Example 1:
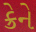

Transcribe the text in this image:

ક્રેને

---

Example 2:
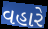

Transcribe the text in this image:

વહારે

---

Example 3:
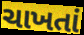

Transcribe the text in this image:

ચાખતાં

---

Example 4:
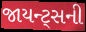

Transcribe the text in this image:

જાયન્ટ્સની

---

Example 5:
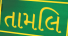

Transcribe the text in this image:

તામલિ